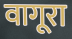
वागूरा